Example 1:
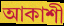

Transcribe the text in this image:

আকাশী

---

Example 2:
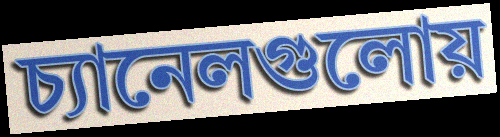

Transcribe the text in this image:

চ্যানেলগুলোয়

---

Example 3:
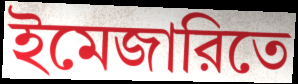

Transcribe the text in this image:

ইমেজারিতে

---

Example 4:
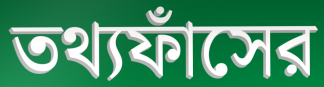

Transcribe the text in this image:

তথ্যফাঁসের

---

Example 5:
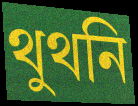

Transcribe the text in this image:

থুথনি